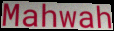
Mahwah